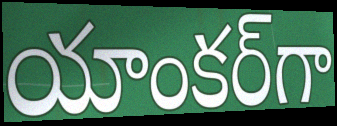
యాంకర్‌గా